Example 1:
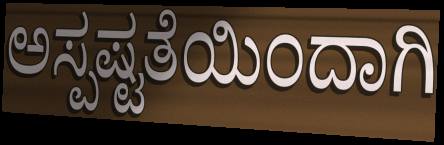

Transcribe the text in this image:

ಅಸ್ಪಷ್ಟತೆಯಿಂದಾಗಿ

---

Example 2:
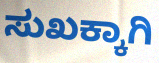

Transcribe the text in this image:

ಸುಖಕ್ಕಾಗಿ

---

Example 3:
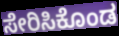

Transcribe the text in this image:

ಸೇರಿಸಿಕೊಂಡ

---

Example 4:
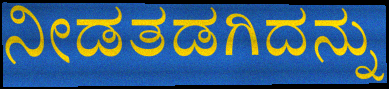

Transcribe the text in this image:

ನೀಡತಡಗಿದನ್ನು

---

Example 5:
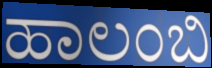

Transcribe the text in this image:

ಹಾಲಂಬಿ